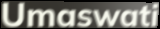
Umaswati